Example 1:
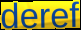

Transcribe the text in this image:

deref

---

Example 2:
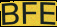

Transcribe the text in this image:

BFE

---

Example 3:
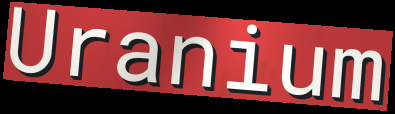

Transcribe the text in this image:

Uranium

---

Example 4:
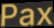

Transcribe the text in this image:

Pax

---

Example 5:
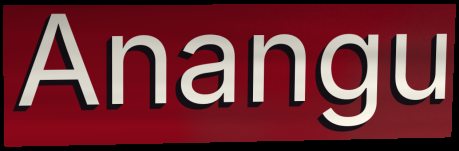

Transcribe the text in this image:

Anangu